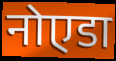
नोएडा